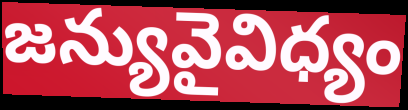
జన్యువైవిధ్యం